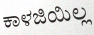
ಕಾಳಜಿಯಿಲ್ಲ